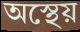
অস্থেয়